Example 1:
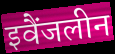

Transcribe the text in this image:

इवैंजलीन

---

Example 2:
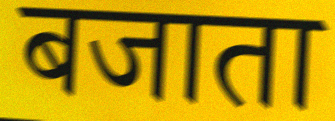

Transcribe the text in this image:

बजाता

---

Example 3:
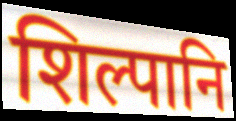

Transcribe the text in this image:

शिल्पानि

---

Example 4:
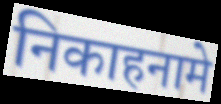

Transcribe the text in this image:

निकाहनामे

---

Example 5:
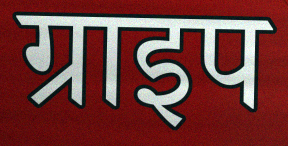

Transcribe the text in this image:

ग्राइप